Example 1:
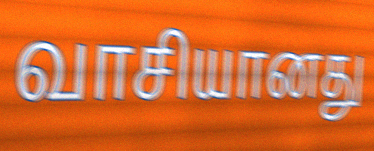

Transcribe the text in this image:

வாசியானது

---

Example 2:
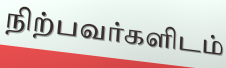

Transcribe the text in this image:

நிற்பவர்களிடம்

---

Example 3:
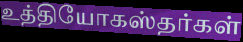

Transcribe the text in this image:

உத்தியோகஸ்தர்கள்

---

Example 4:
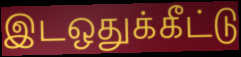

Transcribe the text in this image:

இடஒதுக்கீட்டு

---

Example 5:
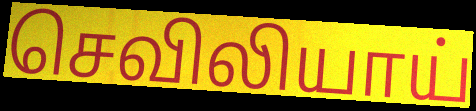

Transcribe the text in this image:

செவிலியாய்